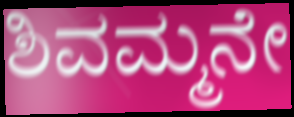
ಶಿವಮ್ಮನೇ